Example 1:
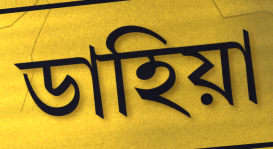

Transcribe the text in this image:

ডাহিয়া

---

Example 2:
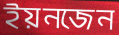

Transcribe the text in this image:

ইয়নজেন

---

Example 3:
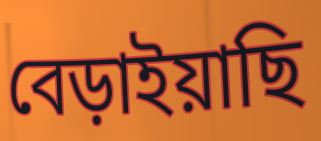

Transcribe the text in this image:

বেড়াইয়াছি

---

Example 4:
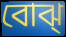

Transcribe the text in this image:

বোঝ্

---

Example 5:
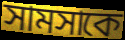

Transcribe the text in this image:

সামসাকে